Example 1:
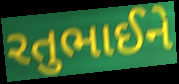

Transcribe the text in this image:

રતુભાઈને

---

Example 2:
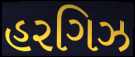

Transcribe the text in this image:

હરગિઝ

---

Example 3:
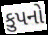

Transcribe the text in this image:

કુપનો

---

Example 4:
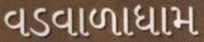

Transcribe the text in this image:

વડવાળાધામ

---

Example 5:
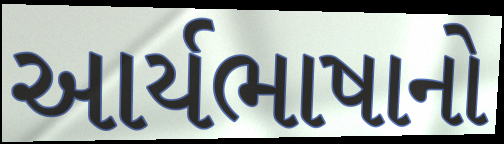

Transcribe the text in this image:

આર્યભાષાનો